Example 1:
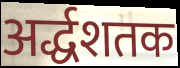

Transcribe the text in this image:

अर्द्धशतक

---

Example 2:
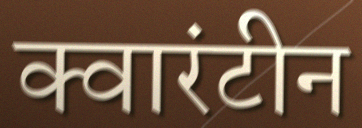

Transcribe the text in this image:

क्वारंटीन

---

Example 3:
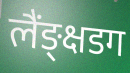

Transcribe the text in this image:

लैंङ्क्षडग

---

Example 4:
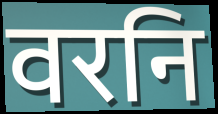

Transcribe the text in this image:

वरनि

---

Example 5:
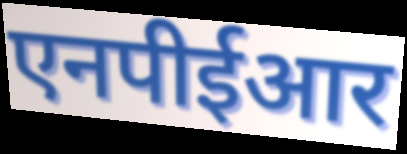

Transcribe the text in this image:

एनपीईआर